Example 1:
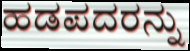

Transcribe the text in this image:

ಹಡಪದರನ್ನು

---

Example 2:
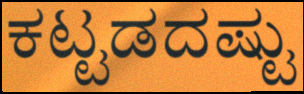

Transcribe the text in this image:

ಕಟ್ಟಡದಷ್ಟು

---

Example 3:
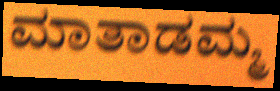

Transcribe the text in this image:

ಮಾತಾಡಮ್ಮ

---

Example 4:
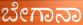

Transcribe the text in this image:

ಬೇಗಾನಾ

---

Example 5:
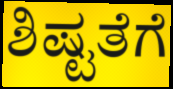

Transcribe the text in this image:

ಶಿಷ್ಟತೆಗೆ